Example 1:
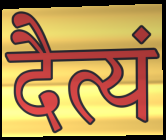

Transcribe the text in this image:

दैत्यं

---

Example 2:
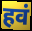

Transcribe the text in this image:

हवं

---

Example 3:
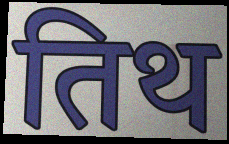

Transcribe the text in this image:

तिथ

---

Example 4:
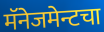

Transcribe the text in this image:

मॅनेजमेन्टचा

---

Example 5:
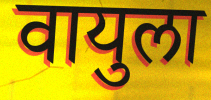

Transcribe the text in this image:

वायुला